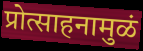
प्रोत्साहनामुळं